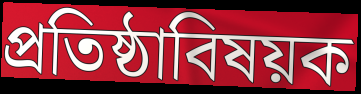
প্রতিষ্ঠাবিষয়ক